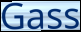
Gass